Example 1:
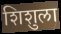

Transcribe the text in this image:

शिशुला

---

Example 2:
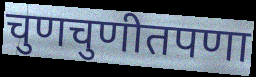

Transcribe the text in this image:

चुणचुणीतपणा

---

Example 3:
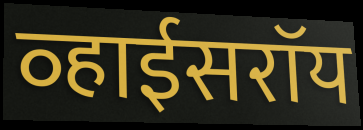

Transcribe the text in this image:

व्हाईसरॉय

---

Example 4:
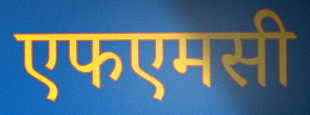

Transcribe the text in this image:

एफएमसी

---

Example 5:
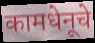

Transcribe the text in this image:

कामधेनूचे